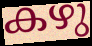
കഴു